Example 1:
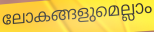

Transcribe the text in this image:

ലോകങ്ങളുമെല്ലാം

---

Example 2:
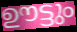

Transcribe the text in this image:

ഊട്ടും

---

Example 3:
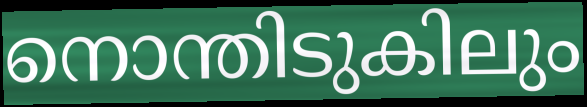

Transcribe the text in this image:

നൊന്തിടുകിലും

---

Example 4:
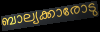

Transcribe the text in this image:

ബാല്യക്കാരോടു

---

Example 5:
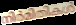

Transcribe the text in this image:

നിർമിതികൾ